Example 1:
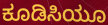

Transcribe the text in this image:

ಕೂಡಿಸಿಯೂ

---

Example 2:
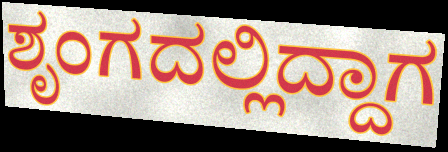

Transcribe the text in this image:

ಶೃಂಗದಲ್ಲಿದ್ದಾಗ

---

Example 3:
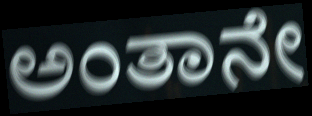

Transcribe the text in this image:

ಅಂತಾನೇ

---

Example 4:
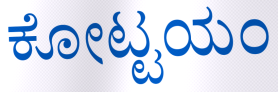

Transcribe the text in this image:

ಕೋಟ್ಟಯಂ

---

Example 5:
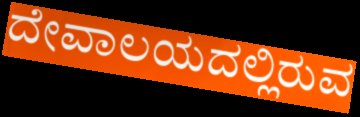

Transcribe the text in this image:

ದೇವಾಲಯದಲ್ಲಿರುವ